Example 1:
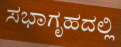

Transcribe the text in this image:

ಸಭಾಗೃಹದಲ್ಲಿ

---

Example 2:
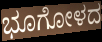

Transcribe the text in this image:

ಭೂಗೋಳದ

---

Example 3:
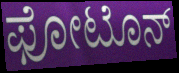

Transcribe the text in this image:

ಫೋಟೊನ್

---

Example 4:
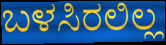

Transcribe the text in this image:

ಬಳಸಿರಲಿಲ್ಲ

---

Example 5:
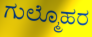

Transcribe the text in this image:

ಗುಲ್ಮೊಹರ